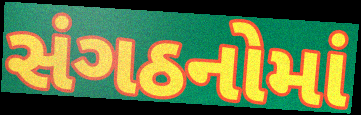
સંગઠનોમાં